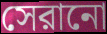
সেরানো